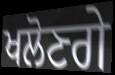
ਖਲੋਣਗੇ